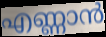
എണ്ണാൻ